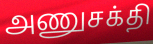
அணுசக்தி